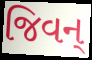
જિવન્